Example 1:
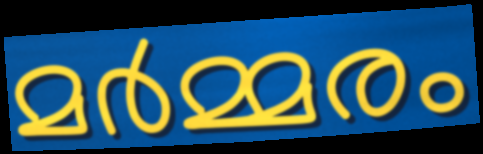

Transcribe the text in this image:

മർമ്മരം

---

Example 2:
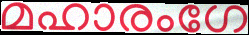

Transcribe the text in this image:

മഹാരംഗേ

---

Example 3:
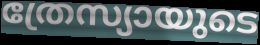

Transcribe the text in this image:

ത്രേസ്യായുടെ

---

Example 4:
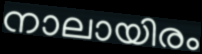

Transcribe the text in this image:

നാലായിരം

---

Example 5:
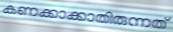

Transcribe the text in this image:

കണക്കാക്കാതിരുന്നത്